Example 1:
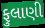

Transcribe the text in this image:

ફુલાણી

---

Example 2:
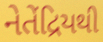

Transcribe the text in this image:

નેતેંદ્રિયથી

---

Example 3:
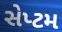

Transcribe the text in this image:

સેપ્ટમ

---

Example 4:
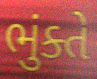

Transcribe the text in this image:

ભુંક્તે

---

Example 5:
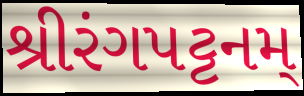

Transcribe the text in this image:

શ્રીરંગપટ્ટનમ્